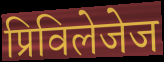
प्रिविलेजेज